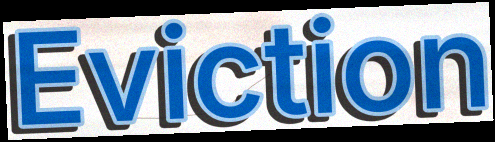
Eviction